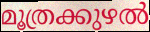
മൂത്രക്കുഴൽ